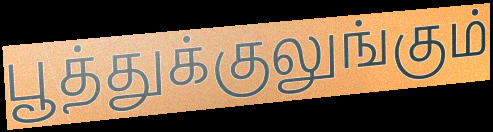
பூத்துக்குலுங்கும்